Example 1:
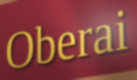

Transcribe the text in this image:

Oberai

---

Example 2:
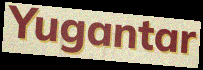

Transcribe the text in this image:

Yugantar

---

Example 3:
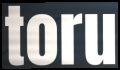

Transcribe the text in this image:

toru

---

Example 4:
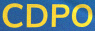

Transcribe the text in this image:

CDPO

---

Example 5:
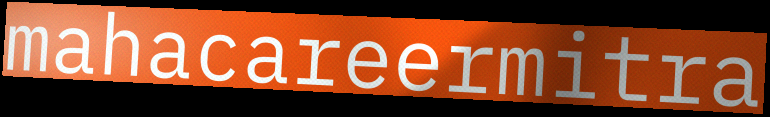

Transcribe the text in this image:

mahacareermitra